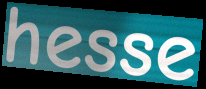
hesse